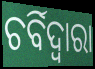
ଚର୍ବିଦ୍ଵାରା